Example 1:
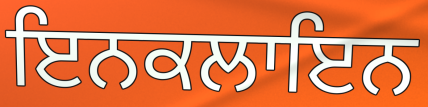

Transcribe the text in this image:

ਇਨਕਲਾਇਨ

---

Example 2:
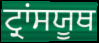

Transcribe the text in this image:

ਟ੍ਰਾਂਸਯੂਥ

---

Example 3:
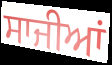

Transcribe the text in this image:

ਸਾਜੀਆਂ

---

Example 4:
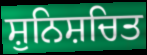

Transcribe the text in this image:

ਸ਼ੁਨਿਸ਼ਚਿਤ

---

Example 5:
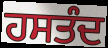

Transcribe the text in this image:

ਹਸਤੰਦ